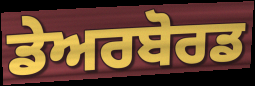
ਡੇਅਰਬੋਰਡ